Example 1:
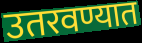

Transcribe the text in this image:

उतरवण्यात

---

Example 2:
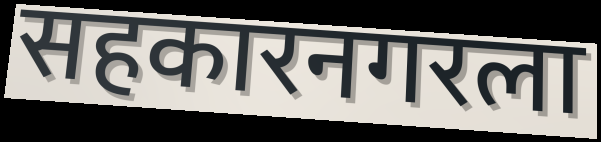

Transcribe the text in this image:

सहकारनगरला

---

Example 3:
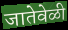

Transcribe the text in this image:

जातेवेळी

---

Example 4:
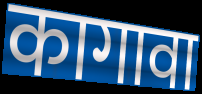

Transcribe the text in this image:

कागावा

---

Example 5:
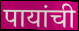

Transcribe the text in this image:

पायांची